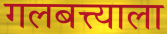
गलबत्त्याला